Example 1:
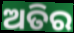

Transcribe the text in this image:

ଅତିର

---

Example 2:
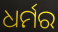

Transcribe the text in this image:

ଧର୍ମର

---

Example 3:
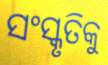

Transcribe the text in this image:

ସଂସ୍କୃତିକୁ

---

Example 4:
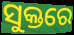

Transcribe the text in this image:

ସୁକ୍ତରେ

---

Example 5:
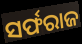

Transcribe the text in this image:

ସର୍ଫରାଜ